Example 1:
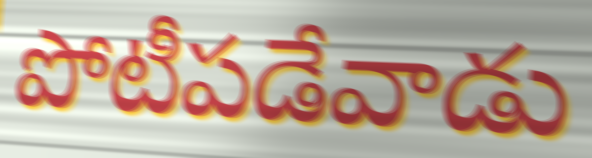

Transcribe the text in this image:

పోటీపడేవాడు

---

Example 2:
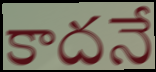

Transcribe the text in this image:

కాదనే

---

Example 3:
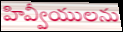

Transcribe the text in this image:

హివ్వీయులను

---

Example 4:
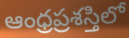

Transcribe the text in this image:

ఆంధ్రప్రశస్తిలో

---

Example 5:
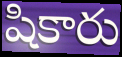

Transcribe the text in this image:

షికారు